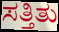
ಸತ್ತಿತು